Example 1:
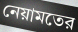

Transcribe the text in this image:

নেয়ামতের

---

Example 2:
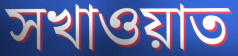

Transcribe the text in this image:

সখাওয়াত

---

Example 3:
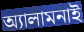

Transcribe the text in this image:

অ্যালামনাই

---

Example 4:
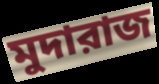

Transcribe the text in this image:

মুদারাজ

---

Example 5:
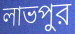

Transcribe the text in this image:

লাভপুর